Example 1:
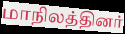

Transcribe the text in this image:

மாநிலத்தினர்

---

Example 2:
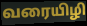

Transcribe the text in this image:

வரையிழி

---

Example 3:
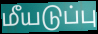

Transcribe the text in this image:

மீயடுப்பு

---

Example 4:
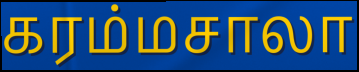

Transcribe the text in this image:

கரம்மசாலா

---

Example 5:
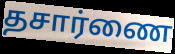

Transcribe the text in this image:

தசார்ணை